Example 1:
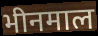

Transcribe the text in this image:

भीनमाल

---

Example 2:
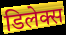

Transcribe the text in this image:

डिलेक्स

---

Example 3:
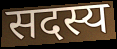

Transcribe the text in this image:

सदस्य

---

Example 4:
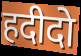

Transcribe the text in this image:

हदीदो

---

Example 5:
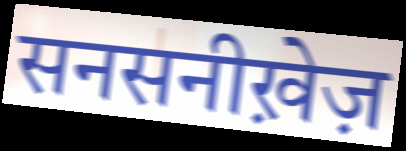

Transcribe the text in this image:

सनसनीख़ेज़